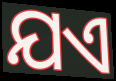
ଯଏ